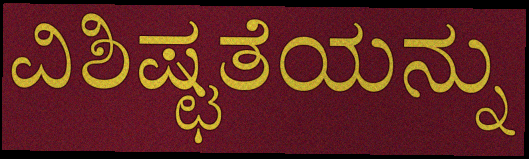
ವಿಶಿಷ್ಟತೆಯನ್ನು